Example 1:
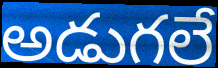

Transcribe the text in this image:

అడుగలే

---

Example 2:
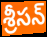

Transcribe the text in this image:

శ్రీసన్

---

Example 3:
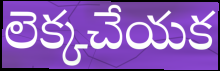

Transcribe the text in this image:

లెక్కచేయక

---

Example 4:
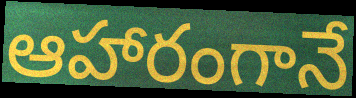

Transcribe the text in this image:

ఆహారంగానే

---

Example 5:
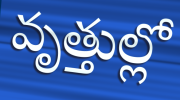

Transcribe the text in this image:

వృత్తుల్లో